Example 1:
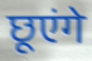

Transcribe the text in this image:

छूएंगे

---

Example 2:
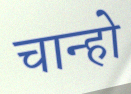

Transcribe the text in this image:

चान्हो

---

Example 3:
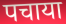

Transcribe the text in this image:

पचाया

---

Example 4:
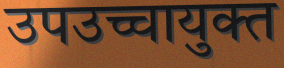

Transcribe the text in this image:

उपउच्चायुक्त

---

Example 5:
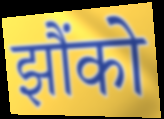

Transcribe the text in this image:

झौंको